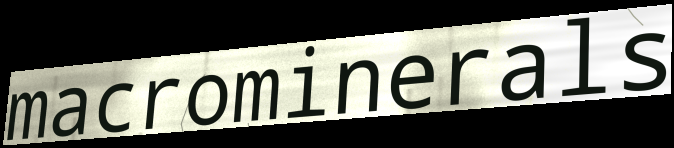
macrominerals